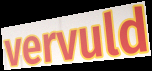
vervuld